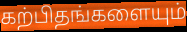
கற்பிதங்களையும்